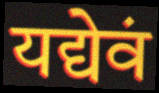
यद्येवं